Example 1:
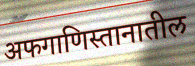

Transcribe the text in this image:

अफगाणिस्तानातील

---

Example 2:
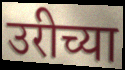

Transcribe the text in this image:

उरीच्या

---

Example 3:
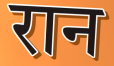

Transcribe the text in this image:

रान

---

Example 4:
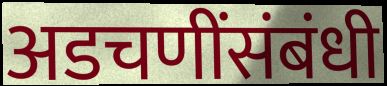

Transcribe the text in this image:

अडचणींसंबंधी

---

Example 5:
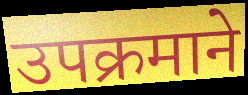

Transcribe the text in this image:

उपक्रमाने